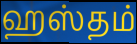
ஹஸ்தம்